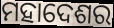
ମହାଦେଶର